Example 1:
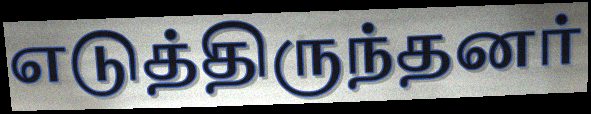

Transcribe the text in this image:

எடுத்திருந்தனர்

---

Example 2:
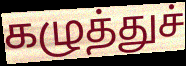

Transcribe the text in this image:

கழுத்துச்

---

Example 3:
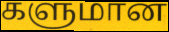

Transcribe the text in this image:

களுமான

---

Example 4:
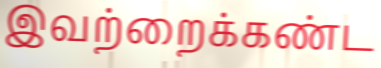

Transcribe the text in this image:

இவற்றைக்கண்ட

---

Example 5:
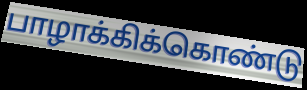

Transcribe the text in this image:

பாழாக்கிக்கொண்டு